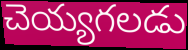
చెయ్యగలడు